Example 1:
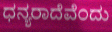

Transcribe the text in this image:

ಧನ್ಯರಾದೆವೆಂದು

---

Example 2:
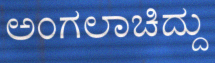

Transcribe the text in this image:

ಅಂಗಲಾಚಿದ್ದು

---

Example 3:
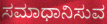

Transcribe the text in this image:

ಸಮಾಧಾನಿಸುವ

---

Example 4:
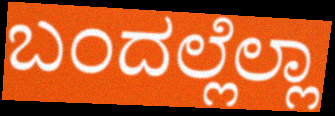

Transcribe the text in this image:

ಬಂದಲ್ಲೆಲ್ಲಾ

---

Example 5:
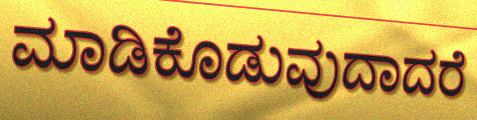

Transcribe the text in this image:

ಮಾಡಿಕೊಡುವುದಾದರೆ